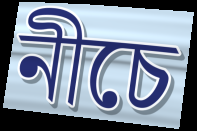
নীচে